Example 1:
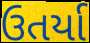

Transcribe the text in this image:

ઉતર્યા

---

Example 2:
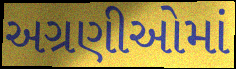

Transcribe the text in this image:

અગ્રણીઓમાં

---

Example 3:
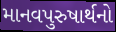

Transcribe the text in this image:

માનવપુરુષાર્થનો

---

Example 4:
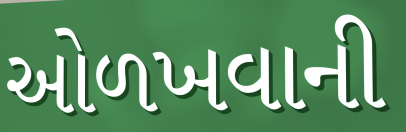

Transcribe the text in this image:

ઓળખવાની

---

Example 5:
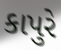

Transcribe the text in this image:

કાપુરે